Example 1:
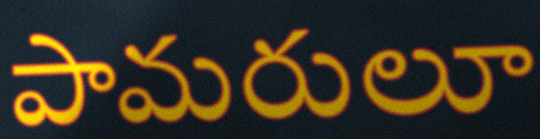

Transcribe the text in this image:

పామరులూ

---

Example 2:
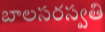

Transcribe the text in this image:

బాలసరస్వతి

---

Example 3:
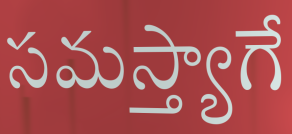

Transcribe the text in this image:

సమస్త్యాగే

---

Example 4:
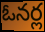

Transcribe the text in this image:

ఓనర్ల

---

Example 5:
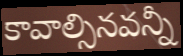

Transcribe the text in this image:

కావాల్సినవన్నీ